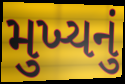
મુખ્યનું